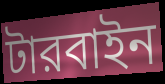
টারবাইন